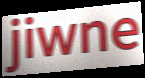
jiwne